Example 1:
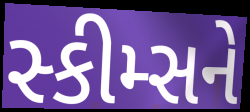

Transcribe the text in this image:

સ્કીમ્સને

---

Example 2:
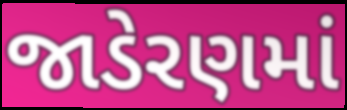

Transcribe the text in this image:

જાડેરણમાં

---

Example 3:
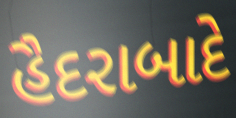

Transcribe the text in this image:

હૈદરાબાદે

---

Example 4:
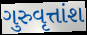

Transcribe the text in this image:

ગુરુવૃત્તાંશ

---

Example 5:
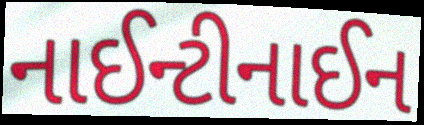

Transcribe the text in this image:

નાઈન્ટીનાઈન